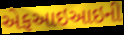
એફઆઇઆઇની